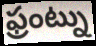
ఫ్రంట్ను